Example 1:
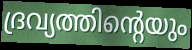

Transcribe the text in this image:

ദ്രവ്യത്തിന്റെയും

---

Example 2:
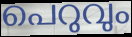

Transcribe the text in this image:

പെറുവും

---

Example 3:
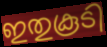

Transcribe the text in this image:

ഇതുകൂടി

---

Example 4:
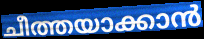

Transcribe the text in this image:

ചീത്തയാക്കാൻ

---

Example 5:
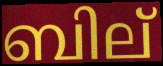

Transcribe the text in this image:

ബില്